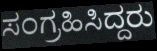
ಸಂಗ್ರಹಿಸಿದ್ದರು